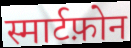
स्मार्टफ़ोन